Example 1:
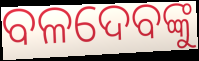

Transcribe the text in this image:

ବଳଦେବଙ୍କୁ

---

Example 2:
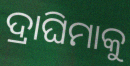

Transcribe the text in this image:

ଦ୍ରାଘିମାକୁ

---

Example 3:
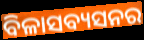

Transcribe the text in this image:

ବିଳାସବ୍ୟସନର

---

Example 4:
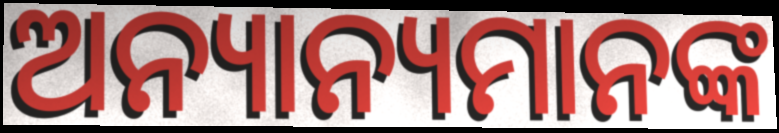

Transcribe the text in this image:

ଅନ୍ୟାନ୍ୟମାନଙ୍କ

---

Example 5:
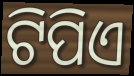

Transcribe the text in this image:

ଟିପିଏ